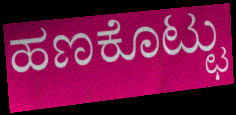
ಹಣಕೊಟ್ಟು